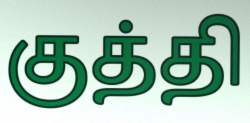
குத்தி